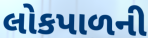
લોકપાળની